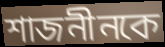
শাজনীনকে